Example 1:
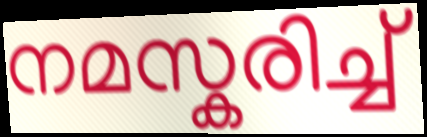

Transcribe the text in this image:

നമസ്കരിച്ച്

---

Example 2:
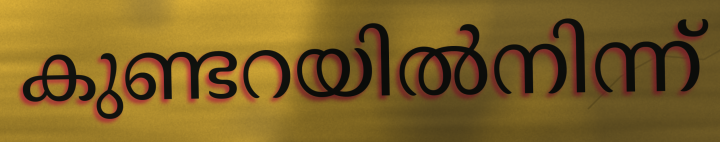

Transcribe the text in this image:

കുണ്ടറയിൽനിന്ന്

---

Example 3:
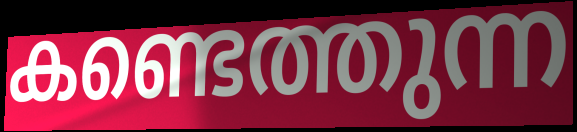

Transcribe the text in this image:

കണ്ടെത്തുന്ന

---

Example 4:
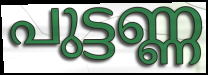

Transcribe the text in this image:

പുട്ടണ്ണ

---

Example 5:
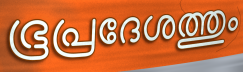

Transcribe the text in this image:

ഭൂപ്രദേശത്തും